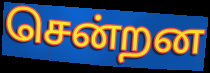
சென்றன